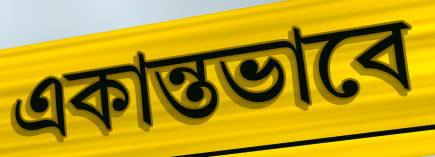
একান্তভাবে